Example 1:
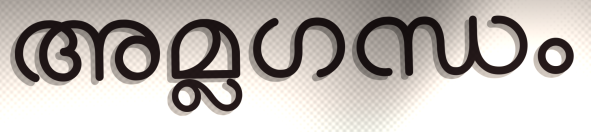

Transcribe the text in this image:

അമ്ലഗന്ധം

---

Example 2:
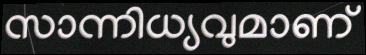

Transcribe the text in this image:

സാന്നിധ്യവുമാണ്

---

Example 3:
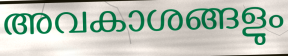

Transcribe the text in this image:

അവകാശങ്ങളും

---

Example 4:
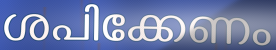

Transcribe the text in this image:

ശപിക്കേണം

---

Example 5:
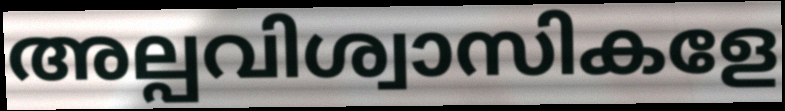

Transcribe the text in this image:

അല്പവിശ്വാസികളേ